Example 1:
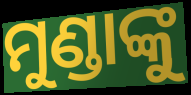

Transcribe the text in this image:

ମୁଣ୍ଡାଙ୍କୁ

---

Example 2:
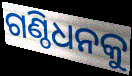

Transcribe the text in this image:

ଗଣ୍ଠିଧନକୁ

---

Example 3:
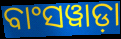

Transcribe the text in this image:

ବାଂସୱାଡ଼ା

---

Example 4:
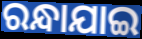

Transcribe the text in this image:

ରନ୍ଧାଯାଇ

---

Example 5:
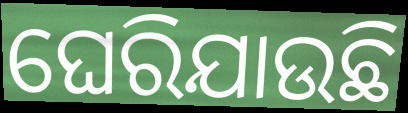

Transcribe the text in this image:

ଘେରିଯାଉଛି